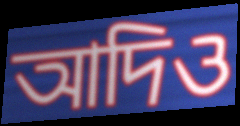
আদিও